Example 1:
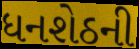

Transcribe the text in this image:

ધનશેઠની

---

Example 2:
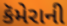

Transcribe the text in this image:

કૅમેરાની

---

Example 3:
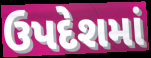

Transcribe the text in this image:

ઉપદેશમાં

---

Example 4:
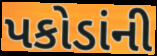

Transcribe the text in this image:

પકોડાંની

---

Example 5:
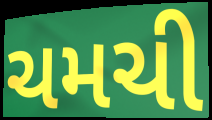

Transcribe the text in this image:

ચમચી